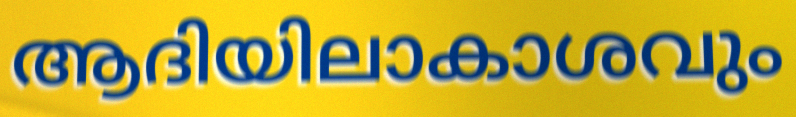
ആദിയിലാകാശവും